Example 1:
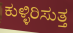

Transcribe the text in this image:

ಕುಳ್ಳಿರಿಸುತ್ತ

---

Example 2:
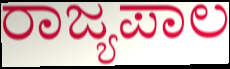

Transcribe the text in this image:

ರಾಜ್ಯಪಾಲ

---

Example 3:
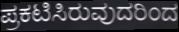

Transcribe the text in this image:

ಪ್ರಕಟಿಸಿರುವುದರಿಂದ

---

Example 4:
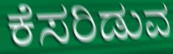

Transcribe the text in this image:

ಕೆಸರಿಡುವ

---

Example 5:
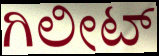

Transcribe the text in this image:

ಗಿಲೀಟ್